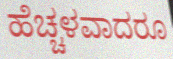
ಹೆಚ್ಚಳವಾದರೂ